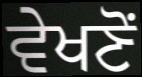
ਵੇਖਣੋਂ